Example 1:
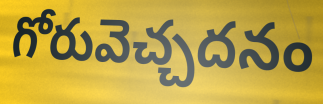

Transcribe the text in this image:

గోరువెచ్చదనం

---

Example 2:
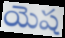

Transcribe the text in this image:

యెష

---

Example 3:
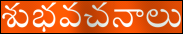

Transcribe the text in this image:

శుభవచనాలు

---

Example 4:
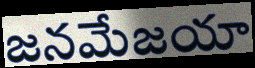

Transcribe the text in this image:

జనమేజయా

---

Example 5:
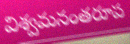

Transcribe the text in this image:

విశ్వమనంతరూప